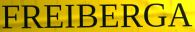
FREIBERGA